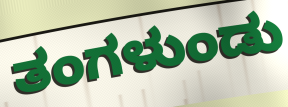
ತಂಗಳುಂಡು